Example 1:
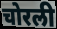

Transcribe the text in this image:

चोरली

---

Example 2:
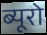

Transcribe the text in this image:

ब्यूरो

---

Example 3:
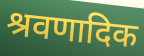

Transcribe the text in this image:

श्रवणादिक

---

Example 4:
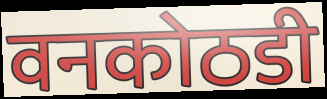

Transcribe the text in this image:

वनकोठडी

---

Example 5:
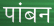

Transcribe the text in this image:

पांबन